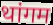
थांगम